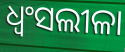
ଧ୍ୱଂସଲୀଳା